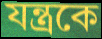
যন্ত্রকে